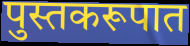
पुस्तकरूपात